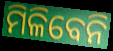
ମିଳିବେନି